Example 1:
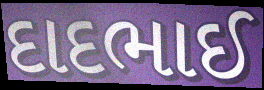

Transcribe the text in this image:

દાદભાઈ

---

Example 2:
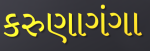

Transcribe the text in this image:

કરુણાગંગા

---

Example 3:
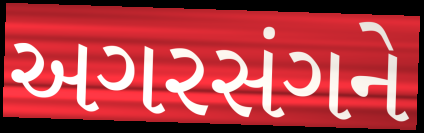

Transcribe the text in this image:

અગરસંગને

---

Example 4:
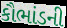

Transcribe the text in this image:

કૌભાંડની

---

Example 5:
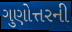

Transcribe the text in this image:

ગુણોત્તરની